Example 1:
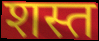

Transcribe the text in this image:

शस्त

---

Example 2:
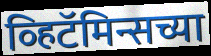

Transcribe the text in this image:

व्हिटॅमिन्सच्या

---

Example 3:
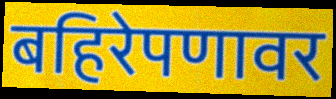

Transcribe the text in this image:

बहिरेपणावर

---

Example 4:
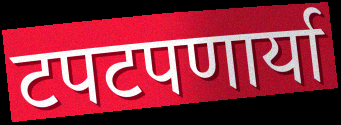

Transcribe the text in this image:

टपटपणार्या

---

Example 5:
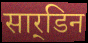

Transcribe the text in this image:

सार्डिन